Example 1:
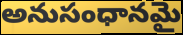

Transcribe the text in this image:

అనుసంధానమై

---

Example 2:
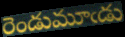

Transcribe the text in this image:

రెండుమూఁడు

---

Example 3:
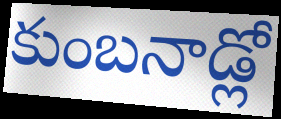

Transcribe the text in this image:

కుంబనాడ్లో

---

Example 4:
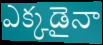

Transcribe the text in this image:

ఎక్కడైనా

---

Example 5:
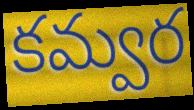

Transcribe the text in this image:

కమ్వర